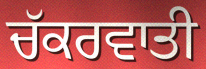
ਚੱਕਰਵਾਤੀ